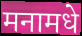
मनामधे